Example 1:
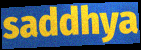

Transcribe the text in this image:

saddhya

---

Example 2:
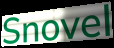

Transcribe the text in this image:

Snovel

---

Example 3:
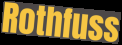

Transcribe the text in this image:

Rothfuss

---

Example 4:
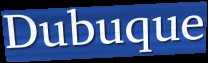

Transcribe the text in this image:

Dubuque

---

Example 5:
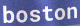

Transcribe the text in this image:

boston